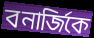
বনার্জিকে